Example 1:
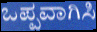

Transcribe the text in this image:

ಒಪ್ಪವಾಗಿಸಿ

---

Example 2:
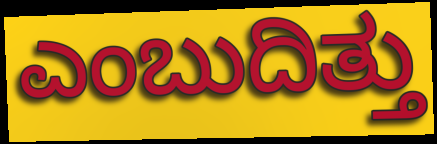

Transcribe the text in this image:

ಎಂಬುದಿತ್ತು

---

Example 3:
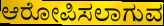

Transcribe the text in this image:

ಆರೋಪಿಸಲಾಗುವ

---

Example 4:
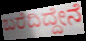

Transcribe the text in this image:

ಬರೆದಿದ್ದೇನೆ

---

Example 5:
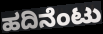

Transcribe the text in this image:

ಹದಿನೆಂಟು